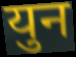
युन